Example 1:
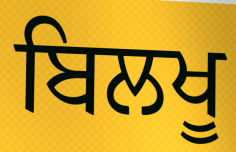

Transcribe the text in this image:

ਬਿਲਖੂ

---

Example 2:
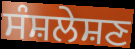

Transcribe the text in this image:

ਸੰਸ਼ਲੇਸ਼ਣ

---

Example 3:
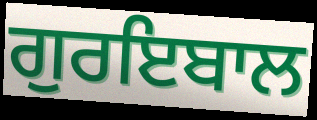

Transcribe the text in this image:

ਗੁਰਇਬਾਲ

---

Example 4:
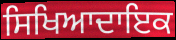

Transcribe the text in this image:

ਸਿਖਿਆਦਾਇਕ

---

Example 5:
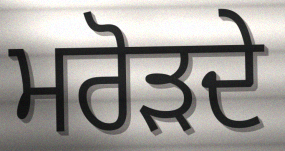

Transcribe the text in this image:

ਮਰੋੜਦੇ